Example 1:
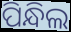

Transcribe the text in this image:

ପିନ୍ଧିଲ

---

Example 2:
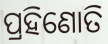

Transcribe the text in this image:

ପ୍ରହିଣୋତି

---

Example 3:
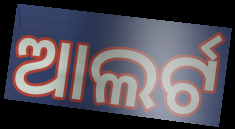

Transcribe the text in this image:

ଆଲର୍ଟ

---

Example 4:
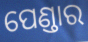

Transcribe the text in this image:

ପେଣ୍ଡାର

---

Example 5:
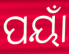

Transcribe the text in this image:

ପୟାଁ